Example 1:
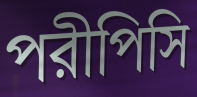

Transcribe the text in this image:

পরীপিসি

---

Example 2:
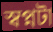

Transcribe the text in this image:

স্বপ্নটা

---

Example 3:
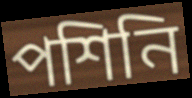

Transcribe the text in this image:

পশিনি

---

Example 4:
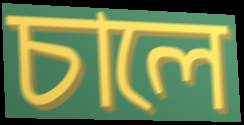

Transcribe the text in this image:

চালে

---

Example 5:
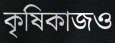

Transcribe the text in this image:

কৃষিকাজও